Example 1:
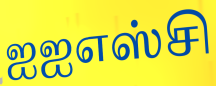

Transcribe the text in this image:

ஐஐஎஸ்சி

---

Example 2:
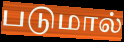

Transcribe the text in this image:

படுமால்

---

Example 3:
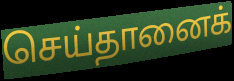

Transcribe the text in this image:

செய்தானைக்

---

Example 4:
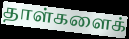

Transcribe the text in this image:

தாள்களைக்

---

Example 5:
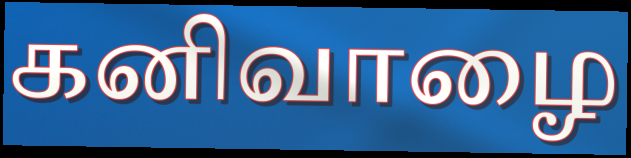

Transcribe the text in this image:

கனிவாழை